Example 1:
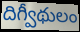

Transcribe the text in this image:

దిగ్వీథులం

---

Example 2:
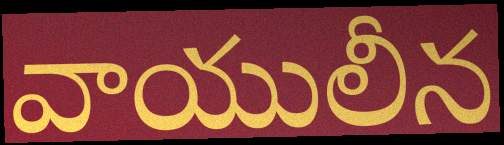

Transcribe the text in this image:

వాయులీన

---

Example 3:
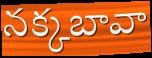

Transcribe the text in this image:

నక్కబావా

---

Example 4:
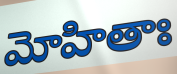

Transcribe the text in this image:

మోహితాః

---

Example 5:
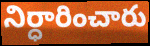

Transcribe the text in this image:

నిర్ధారించారు